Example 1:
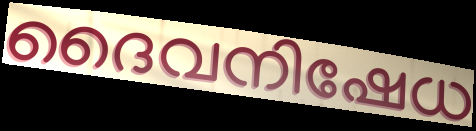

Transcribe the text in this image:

ദൈവനിഷേധ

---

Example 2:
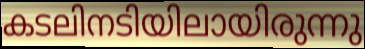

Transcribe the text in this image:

കടലിനടിയിലായിരുന്നു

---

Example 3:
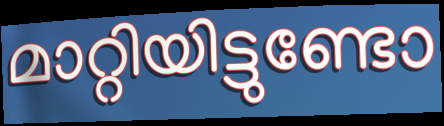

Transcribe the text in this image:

മാറ്റിയിട്ടുണ്ടോ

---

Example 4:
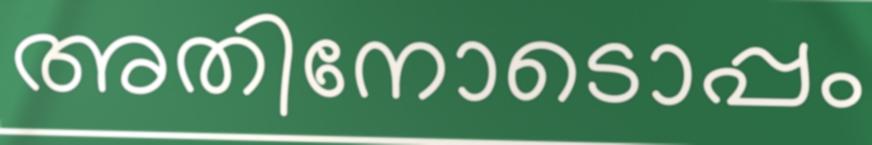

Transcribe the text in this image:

അതിനോടൊപ്പം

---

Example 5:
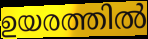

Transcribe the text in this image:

ഉയരത്തിൽ